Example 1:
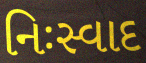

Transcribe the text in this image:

નિઃસ્વાદ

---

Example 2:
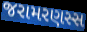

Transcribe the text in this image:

જરામરણસ્સ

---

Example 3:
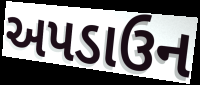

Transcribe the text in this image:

અપડાઉન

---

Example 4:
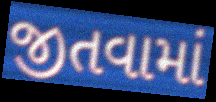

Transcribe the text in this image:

જીતવામાં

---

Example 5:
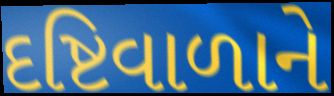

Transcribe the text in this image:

દષ્ટિવાળાને